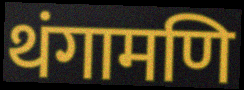
थंगामणि